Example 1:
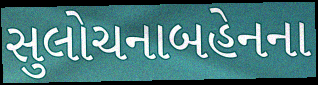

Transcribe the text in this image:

સુલોચનાબહેનના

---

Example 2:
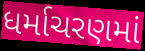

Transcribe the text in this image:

ધર્માચરણમાં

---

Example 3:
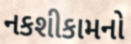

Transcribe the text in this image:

નકશીકામનો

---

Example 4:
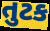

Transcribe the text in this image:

તુટક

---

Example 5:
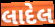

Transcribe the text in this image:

લાદેલ